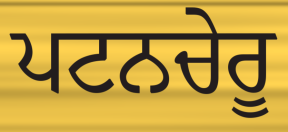
ਪਟਨਚੇਰੂ